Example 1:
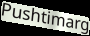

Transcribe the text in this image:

Pushtimarg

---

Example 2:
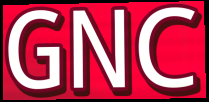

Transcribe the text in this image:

GNC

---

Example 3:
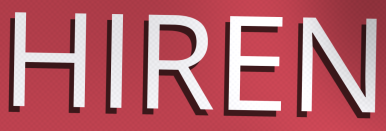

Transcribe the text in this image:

HIREN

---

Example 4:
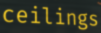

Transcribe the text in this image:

ceilings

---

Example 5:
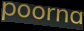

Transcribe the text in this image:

poorna